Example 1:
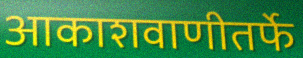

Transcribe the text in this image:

आकाशवाणीतर्फे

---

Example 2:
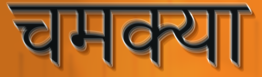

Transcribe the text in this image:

चमक्या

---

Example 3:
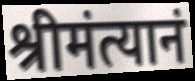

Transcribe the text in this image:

श्रीमंत्यानं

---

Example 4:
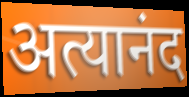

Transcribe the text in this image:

अत्यानंद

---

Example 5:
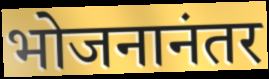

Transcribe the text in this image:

भोजनानंतर